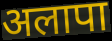
अलापा